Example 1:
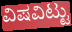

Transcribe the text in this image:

ವಿಷವಿಟ್ಟು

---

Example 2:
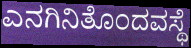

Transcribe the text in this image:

ಎನಗಿನಿತೊಂದವಸ್ಥೆ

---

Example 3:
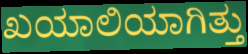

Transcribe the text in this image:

ಖಯಾಲಿಯಾಗಿತ್ತು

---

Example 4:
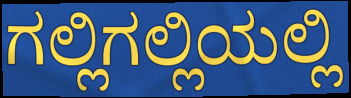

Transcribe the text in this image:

ಗಲ್ಲಿಗಲ್ಲಿಯಲ್ಲಿ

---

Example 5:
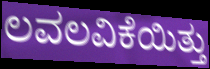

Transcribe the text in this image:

ಲವಲವಿಕೆಯಿತ್ತು